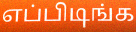
எப்பிடிங்க